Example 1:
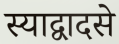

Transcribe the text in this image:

स्याद्वादसे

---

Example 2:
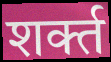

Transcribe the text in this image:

शर्क्त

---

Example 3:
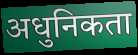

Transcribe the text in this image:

अधुनिकता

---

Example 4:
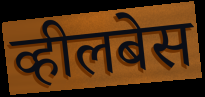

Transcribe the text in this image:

व्हीलबेस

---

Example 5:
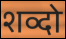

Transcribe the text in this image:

शव्दो